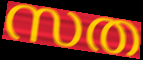
സത